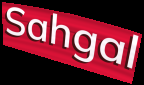
Sahgal